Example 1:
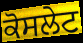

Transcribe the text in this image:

ਕੋਸਲੇਟ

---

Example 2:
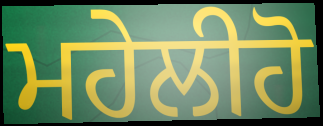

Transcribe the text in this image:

ਮਹੇਲੀਹੋ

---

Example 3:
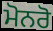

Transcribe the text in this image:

ਮੋਨਰੋ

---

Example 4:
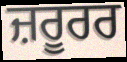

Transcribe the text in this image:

ਜ਼ਰੂਰਰ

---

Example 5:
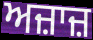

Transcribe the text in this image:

ਅਜ਼ਾਜ਼